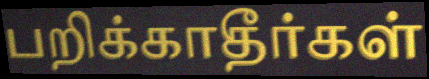
பறிக்காதீர்கள்